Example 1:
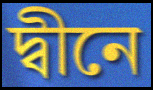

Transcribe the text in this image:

দ্বীনে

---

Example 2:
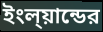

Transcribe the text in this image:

ইংল্য়ান্ডের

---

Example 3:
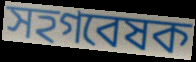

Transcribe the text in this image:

সহগবেষক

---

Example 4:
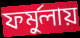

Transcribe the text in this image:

ফর্মুলায়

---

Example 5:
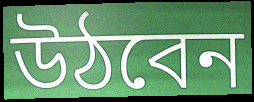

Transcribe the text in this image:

উঠবেন